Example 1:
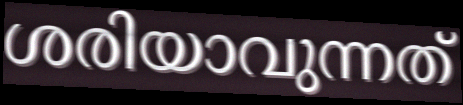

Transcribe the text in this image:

ശരിയാവുന്നത്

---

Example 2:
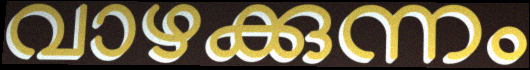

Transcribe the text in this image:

വാഴക്കുന്നം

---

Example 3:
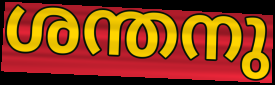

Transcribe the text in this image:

ശന്തനു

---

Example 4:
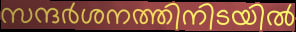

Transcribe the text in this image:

സന്ദർശനത്തിനിടയിൽ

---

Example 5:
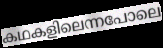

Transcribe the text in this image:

കഥകളിലെന്നപോലെ